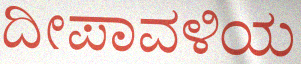
ದೀಪಾವಳಿಯ